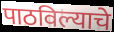
पाठविल्याचे